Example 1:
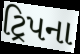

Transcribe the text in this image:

ટ્રિપના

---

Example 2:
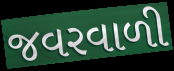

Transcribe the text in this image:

જવરવાળી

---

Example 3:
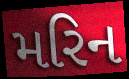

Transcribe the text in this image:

મરિન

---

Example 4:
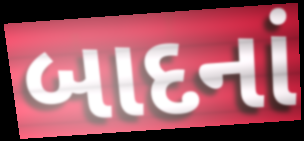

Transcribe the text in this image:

બાદનાં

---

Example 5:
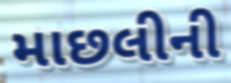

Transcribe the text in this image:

માછલીની